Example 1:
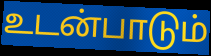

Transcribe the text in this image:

உடன்பாடும்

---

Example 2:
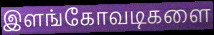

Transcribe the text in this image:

இளங்கோவடிகளை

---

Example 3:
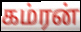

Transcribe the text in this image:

கம்ரன்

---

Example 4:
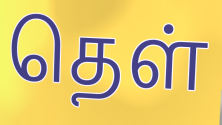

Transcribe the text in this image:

தெள்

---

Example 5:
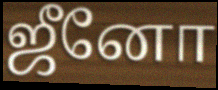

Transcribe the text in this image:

ஜீனோ